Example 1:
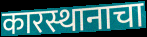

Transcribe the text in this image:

कारस्थानाचा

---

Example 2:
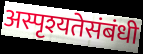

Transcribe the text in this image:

अस्पृश्यतेसंबंधी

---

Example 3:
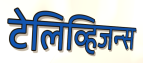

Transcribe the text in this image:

टेलिव्हिजन्स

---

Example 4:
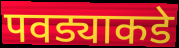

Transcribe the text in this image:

पवड्याकडे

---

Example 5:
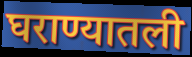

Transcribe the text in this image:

घराण्यातली